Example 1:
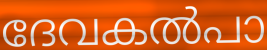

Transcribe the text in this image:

ദേവകൽപാ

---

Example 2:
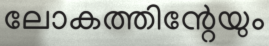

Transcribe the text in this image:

ലോകത്തിന്റേയും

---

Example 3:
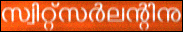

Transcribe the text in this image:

സ്വിറ്റ്സർലന്റിനു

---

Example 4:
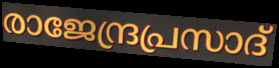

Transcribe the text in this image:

രാജേന്ദ്രപ്രസാദ്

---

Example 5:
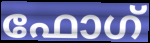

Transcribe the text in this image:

ഫോഗ്